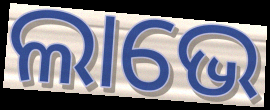
ଲାଭେ